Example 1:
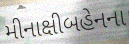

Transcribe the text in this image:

મીનાક્ષીબહેનના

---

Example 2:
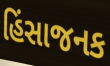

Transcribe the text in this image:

હિંસાજનક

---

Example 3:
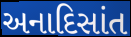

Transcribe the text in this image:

અનાદિસાંત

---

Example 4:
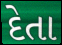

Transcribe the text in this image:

દેતા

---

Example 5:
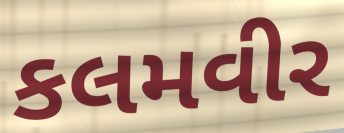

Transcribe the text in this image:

કલમવીર